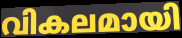
വികലമായി